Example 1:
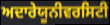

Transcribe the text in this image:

ਅਦਾਰੇਯੂਨੀਵਰਸਿਟੀ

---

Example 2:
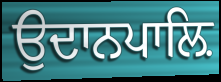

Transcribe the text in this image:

ਉਦਾਨਪਾਲ਼ਿ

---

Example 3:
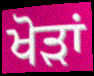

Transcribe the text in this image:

ਖੋੜਾਂ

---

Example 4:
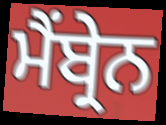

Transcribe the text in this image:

ਮੈਂਬ੍ਰੇਨ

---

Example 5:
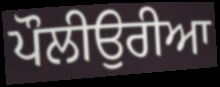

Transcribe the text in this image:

ਪੌਲੀਉਰੀਆ